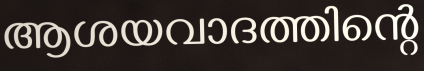
ആശയവാദത്തിന്റെ